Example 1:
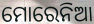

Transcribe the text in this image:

ମୋରେନିଆ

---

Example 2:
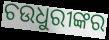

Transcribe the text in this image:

ଚଉଧୁରୀଙ୍କର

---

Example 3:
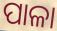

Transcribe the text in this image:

ପାଳା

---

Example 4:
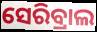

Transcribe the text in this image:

ସେରିବ୍ରାଲ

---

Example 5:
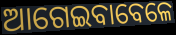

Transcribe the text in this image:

ଆଗେଇବାବେଳେ